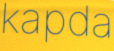
kapda